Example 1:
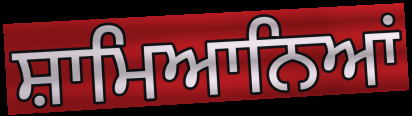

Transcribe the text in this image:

ਸ਼ਾਮਿਆਨਿਆਂ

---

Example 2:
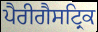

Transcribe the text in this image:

ਪੈਰੀਗੈਸਟ੍ਰਿਕ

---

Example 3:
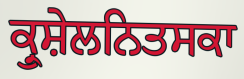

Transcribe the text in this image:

ਕ੍ਰੁਸ਼ੇਲਨਿਤਸਕਾ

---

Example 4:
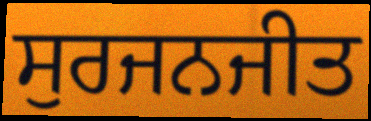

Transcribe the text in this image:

ਸੁਰਜਨਜੀਤ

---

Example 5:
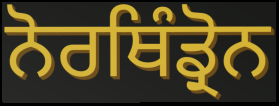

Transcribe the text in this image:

ਨੋਰਥਿੰਡ੍ਰੋਨ